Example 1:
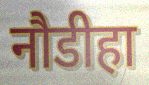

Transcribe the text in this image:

नौडीहा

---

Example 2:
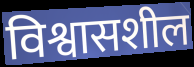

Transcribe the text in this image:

विश्वासशील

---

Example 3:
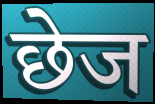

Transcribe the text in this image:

छेज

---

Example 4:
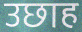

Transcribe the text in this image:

उछाह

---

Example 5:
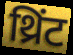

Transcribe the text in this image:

थ्रिंट